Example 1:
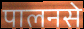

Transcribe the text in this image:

पालनसे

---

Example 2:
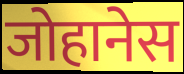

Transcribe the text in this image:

जोहानेस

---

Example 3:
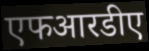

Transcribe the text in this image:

एफआरडीए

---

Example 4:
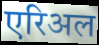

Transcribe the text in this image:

एरिअल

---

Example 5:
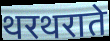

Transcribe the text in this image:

थरथराते